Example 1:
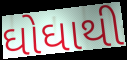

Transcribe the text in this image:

ઘોઘાથી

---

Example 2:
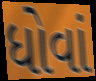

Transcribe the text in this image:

ધોવાં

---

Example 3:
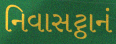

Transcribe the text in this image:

નિવાસટ્ઠાનં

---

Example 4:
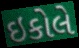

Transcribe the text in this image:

ઇકોલે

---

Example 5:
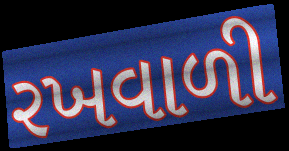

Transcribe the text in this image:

રખવાળી